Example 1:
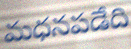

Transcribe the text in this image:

మధనపడేది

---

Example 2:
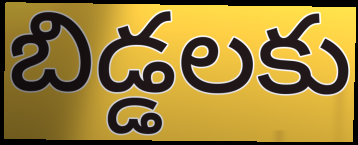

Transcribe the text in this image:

బిడ్డలకు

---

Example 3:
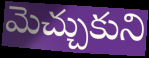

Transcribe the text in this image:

మెచ్చుకుని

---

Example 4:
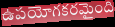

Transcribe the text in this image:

ఉపయోగకరమైంది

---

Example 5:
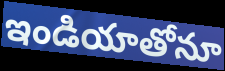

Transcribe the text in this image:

ఇండియాతోనూ